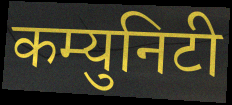
कम्युनिटी